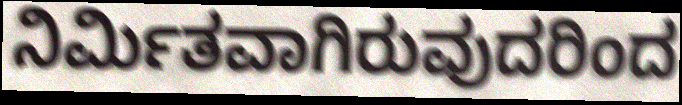
ನಿರ್ಮಿತವಾಗಿರುವುದರಿಂದ